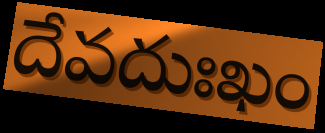
దేవదుఃఖం